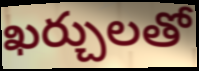
ఖర్చులతో